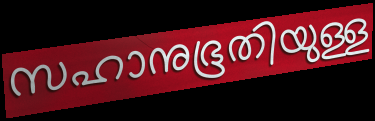
സഹാനുഭൂതിയുള്ള